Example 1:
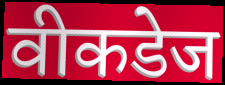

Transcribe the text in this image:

वीकडेज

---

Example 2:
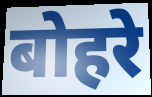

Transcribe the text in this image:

बोहरे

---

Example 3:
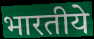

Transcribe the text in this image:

भारतीये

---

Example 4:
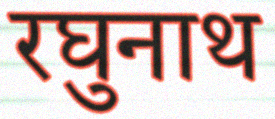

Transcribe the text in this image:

रघुनाथ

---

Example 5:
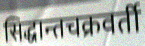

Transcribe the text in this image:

सिद्धान्तचक्रवर्ती